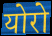
योरो